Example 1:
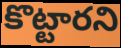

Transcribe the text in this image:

కొట్టారని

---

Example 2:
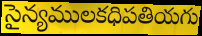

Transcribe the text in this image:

సైన్యములకధిపతియగు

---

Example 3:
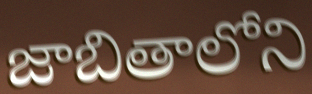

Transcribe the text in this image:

జాబితాలోని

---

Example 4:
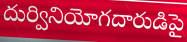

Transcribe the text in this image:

దుర్వినియోగదారుడిపై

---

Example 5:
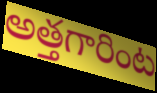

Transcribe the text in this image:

అత్తగారింట